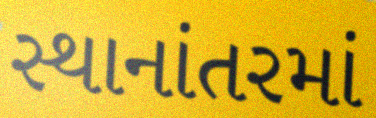
સ્થાનાંતરમાં